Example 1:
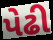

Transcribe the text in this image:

પેઢી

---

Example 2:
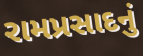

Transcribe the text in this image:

રામપ્રસાદનું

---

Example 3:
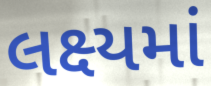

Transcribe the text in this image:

લક્ષ્યમાં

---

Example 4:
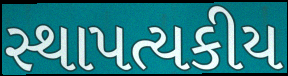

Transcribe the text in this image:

સ્થાપત્યકીય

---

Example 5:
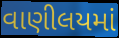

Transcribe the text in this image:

વાણીલયમાં